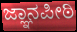
ಜ್ಞಾನಪೀಠಿ